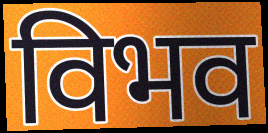
विभव